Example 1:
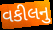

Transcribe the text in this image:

વકીલનુ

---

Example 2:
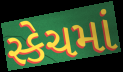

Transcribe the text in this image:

સ્કેચમાં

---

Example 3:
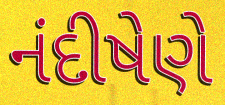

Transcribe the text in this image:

નંદીષેણે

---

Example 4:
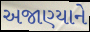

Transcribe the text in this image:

અજાણ્યાને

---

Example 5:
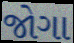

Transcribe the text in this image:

જોગા